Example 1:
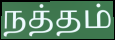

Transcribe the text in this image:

நத்தம்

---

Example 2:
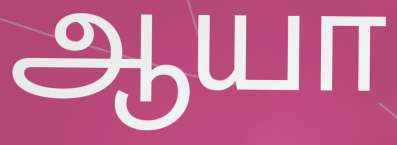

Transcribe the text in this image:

ஆயா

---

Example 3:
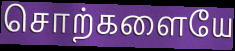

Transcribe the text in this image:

சொற்களையே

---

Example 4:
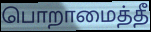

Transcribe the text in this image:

பொறாமைத்தீ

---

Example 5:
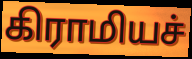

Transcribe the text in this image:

கிராமியச்